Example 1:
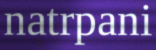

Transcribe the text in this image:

natrpani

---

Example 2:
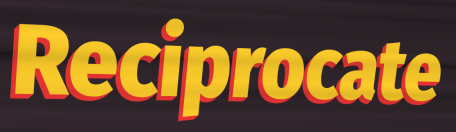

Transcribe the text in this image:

Reciprocate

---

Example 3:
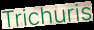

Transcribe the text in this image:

Trichuris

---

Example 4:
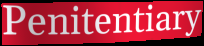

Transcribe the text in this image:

Penitentiary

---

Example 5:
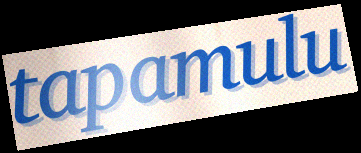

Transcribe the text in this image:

tapamulu